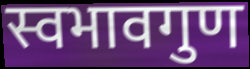
स्वभावगुण